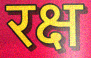
रक्ष